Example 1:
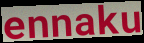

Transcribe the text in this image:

ennaku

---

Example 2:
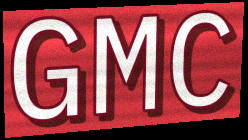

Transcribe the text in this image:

GMC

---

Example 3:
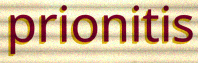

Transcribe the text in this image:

prionitis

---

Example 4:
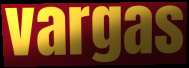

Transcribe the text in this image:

vargas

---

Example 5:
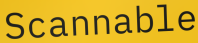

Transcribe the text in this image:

Scannable